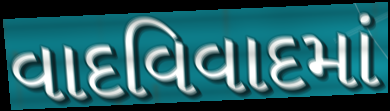
વાદવિવાદમાં